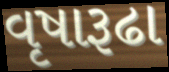
વૃષારૂઢા